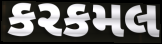
કરકમલ